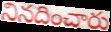
నినదించారు